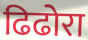
ढिढोरा